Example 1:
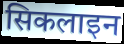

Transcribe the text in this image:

सिकलाइन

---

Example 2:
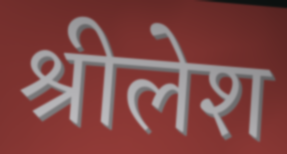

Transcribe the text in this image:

श्रीलेश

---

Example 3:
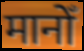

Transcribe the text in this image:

मानोँ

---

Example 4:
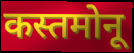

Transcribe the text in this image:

कस्तमोनू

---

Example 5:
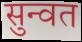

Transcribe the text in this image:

सुन्वत